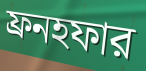
ফ্রনহফার